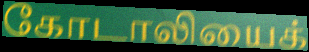
கோடாலியைக்